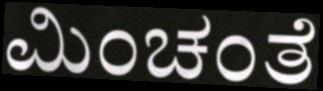
ಮಿಂಚಂತೆ